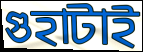
গুহাটাই